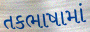
તકભાષામાં